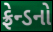
ફ્રેન્ડનો